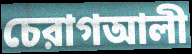
চেরাগআলী